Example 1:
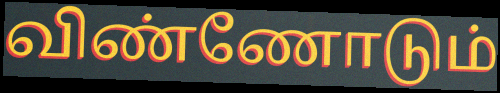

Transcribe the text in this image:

விண்ணோடும்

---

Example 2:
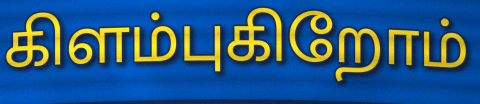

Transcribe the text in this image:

கிளம்புகிறோம்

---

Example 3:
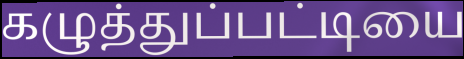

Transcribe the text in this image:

கழுத்துப்பட்டியை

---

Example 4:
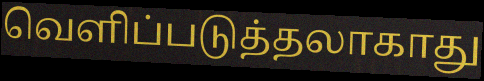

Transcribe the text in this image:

வெளிப்படுத்தலாகாது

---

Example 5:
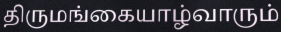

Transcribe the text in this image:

திருமங்கையாழ்வாரும்